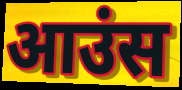
आउंस